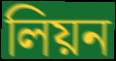
লিয়ন